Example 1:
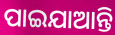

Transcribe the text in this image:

ପାଇଯାଆନ୍ତି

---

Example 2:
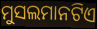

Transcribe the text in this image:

ମୁସଲମାନଟିଏ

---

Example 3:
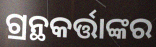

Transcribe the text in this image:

ଗ୍ରନ୍ଥକର୍ତ୍ତାଙ୍କର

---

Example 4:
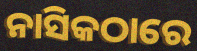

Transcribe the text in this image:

ନାସିକଠାରେ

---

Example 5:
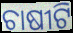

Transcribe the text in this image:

ଚାଷୀଟି